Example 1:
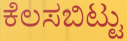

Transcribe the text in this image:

ಕೆಲಸಬಿಟ್ಟು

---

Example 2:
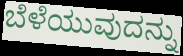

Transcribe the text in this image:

ಬೆಳೆಯುವುದನ್ನು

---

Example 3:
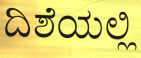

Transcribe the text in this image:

ದಿಶೆಯಲ್ಲಿ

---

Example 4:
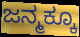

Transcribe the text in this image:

ಜನ್ಮಕ್ಕೂ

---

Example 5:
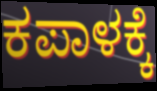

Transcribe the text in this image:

ಕಪಾಳಕ್ಕೆ